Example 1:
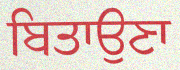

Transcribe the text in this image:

ਬਿਤਾਉਣਾ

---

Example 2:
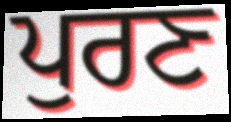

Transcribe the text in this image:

ਪੁਰਣ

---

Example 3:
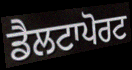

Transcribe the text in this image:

ਡੈਲਟਾਪੋਰਟ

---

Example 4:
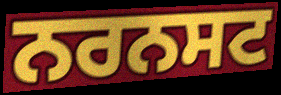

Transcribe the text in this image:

ਨਰਨਸਟ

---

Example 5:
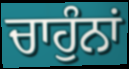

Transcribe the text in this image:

ਚਾਹੁੰਨਾਂ